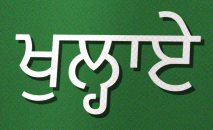
ਖੁਲ੍ਹਾਏ